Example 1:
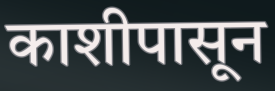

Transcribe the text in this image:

काशीपासून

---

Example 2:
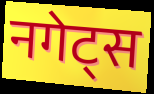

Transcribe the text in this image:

नगेट्स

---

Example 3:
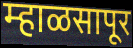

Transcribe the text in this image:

म्हाळसापूर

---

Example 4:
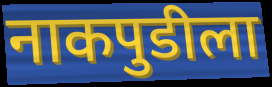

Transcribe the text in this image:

नाकपुडीला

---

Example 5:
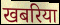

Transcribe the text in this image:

खबरिया